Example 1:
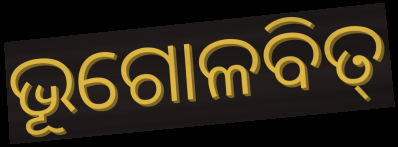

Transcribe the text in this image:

ଭୂଗୋଳବିତ୍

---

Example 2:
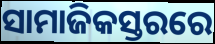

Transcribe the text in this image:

ସାମାଜିକସ୍ତରରେ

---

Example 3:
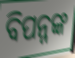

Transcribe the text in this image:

ବିପନ୍ନଙ୍କ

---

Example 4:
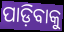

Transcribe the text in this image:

ପାଡ଼ିବାକୁ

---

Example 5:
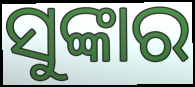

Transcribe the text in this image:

ସୁଙ୍କାର